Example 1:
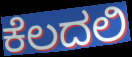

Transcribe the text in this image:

ಕೆಲದಲಿ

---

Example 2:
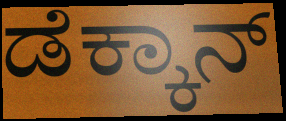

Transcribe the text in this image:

ಡೆಕ್ಕಾನ್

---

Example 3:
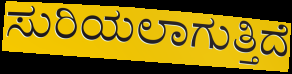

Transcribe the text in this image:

ಸುರಿಯಲಾಗುತ್ತಿದೆ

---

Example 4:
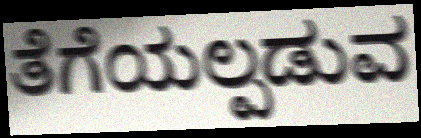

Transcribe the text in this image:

ತೆಗೆಯಲ್ಪಡುವ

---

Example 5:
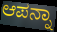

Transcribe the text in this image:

ಆಪನ್ನಾ